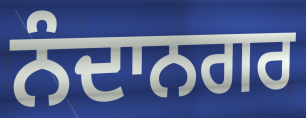
ਨੰਦਾਨਗਰ